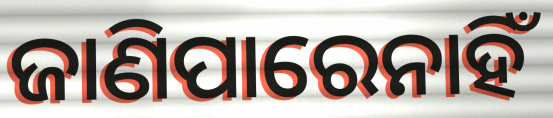
ଜାଣିପାରେନାହିଁ